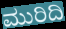
ಮುರಿದಿ